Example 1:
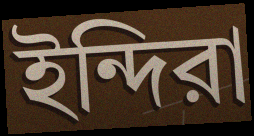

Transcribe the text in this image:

ইন্দিরা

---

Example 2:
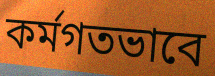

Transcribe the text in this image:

কর্মগতভাবে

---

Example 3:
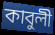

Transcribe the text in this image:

কাবুলী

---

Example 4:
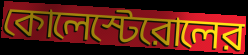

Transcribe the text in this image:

কোলেস্টেরোলের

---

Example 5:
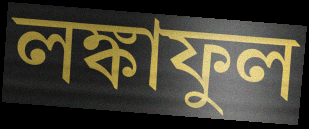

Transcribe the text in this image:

লঙ্কাফুল